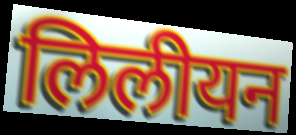
लिलीयन